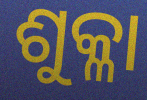
ଶୁକ୍ଳା